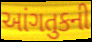
આંગતુકની